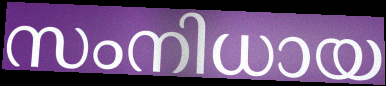
സംനിധായ